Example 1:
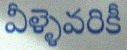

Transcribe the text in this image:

వీళ్ళెవరికీ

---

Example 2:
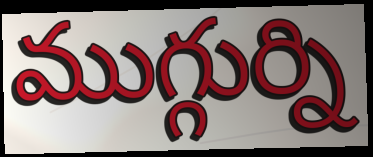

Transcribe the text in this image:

ముగ్గుర్ని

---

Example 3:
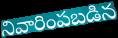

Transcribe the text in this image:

నివారింపబడిన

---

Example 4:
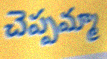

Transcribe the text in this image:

చెప్పమ్మా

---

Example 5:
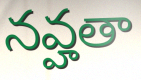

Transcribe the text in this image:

నవ్హతా